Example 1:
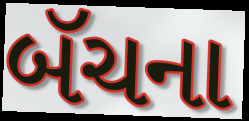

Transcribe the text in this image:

બૅચના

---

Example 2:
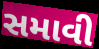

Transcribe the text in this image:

સમાવી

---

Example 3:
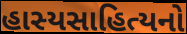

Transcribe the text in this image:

હાસ્યસાહિત્યનો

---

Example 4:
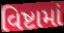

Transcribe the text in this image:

વિષ્ટામાં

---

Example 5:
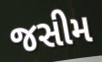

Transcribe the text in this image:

જસીમ